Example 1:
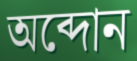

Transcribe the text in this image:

অব্দোন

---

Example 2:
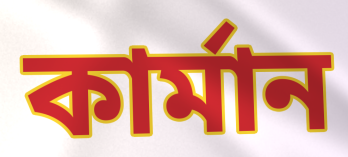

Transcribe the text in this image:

কার্মান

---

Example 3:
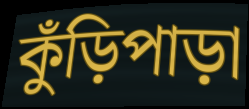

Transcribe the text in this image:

কুঁড়িপাড়া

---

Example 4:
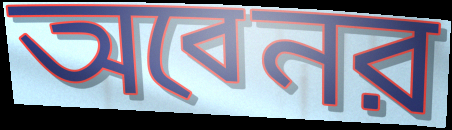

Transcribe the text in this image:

অব্নের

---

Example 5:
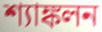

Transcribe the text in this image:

শ্যাঙ্কলন